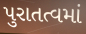
પુરાતત્વમાં